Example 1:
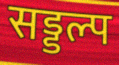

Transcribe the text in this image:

सड्डल्प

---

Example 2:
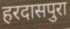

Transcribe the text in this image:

हरदासपुरा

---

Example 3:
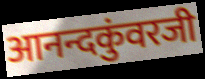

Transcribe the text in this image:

आनन्दकुंवरजी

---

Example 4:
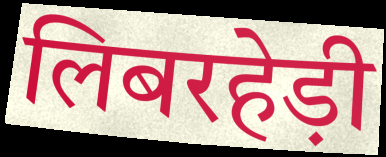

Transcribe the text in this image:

लिबरहेड़ी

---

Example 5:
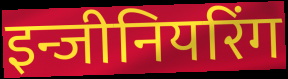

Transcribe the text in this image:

इन्जीनियरिंग